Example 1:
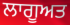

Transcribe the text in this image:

ਲਾਗੂਅਤ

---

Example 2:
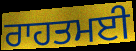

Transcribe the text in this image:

ਰਾਹਤਮਈ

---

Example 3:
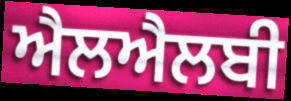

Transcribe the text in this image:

ਐਲਐਲਬੀ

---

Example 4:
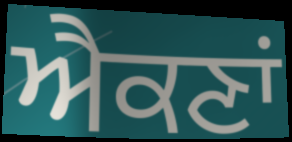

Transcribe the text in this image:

ਐਕਣਾਂ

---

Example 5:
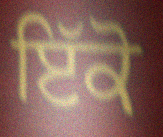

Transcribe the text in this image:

ਇੱਕੋ